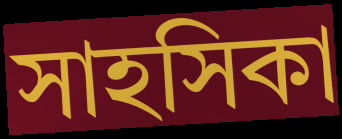
সাহসিকা